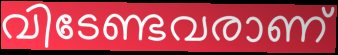
വിടേണ്ടവരാണ്